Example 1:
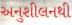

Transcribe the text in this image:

અનુશીલનથી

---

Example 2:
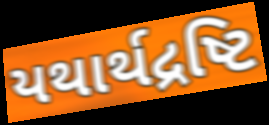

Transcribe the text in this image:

યથાર્થદ્રષ્ટિ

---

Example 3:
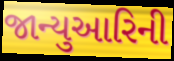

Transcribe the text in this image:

જાન્યુઆરિની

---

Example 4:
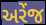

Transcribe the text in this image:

અરેંજ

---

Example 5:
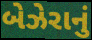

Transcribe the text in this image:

બેઝેરાનું